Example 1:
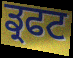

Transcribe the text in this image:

ਡ੍ਰਫਟ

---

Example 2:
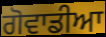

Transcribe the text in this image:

ਗੋਵਾਡੀਆ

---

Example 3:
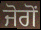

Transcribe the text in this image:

ਜੋਗੋਂ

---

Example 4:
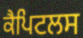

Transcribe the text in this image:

ਕੈਪਿਟਲਸ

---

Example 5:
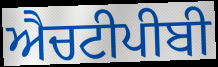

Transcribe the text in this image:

ਐਚਟੀਪੀਬੀ